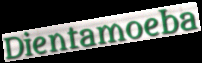
Dientamoeba